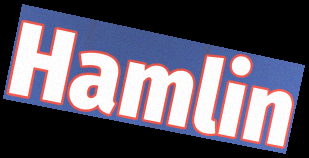
Hamlin